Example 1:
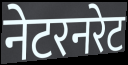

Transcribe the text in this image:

नेटरनरेट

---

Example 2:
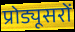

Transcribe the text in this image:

प्रोड्यूसरों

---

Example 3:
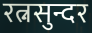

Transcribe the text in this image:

रत्नसुन्दर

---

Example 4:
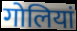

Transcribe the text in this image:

गोलियां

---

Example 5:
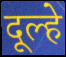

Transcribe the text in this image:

दूल्हे